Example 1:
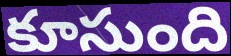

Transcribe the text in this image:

కూసుంది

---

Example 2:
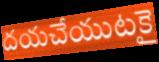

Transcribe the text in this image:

దయచేయుటకై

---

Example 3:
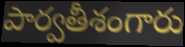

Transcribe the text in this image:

పార్వతీశంగారు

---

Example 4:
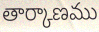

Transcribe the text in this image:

తార్కాణము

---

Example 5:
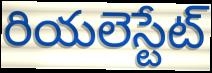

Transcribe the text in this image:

రియలెస్టేట్